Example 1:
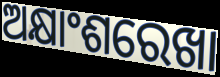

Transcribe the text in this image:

ଅକ୍ଷାଂଶରେଖା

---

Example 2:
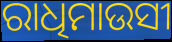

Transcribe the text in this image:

ରାଧିମାଉସୀ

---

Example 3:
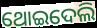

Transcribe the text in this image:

ଥୋଇଦେଲି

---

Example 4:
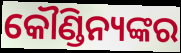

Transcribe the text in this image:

କୌଣ୍ଡିନ୍ୟଙ୍କର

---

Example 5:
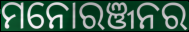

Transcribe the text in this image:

ମନୋରଞ୍ଜନର